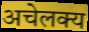
अचेलक्य